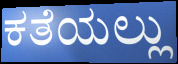
ಕತೆಯಲ್ಲು